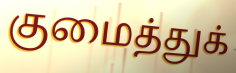
குமைத்துக்